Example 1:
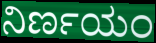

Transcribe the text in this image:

ನಿರ್ಣಯಂ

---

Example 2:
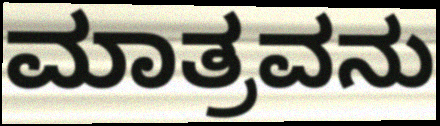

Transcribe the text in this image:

ಮಾತ್ರವನು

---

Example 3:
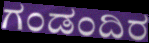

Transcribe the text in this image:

ಗಂಡಂದಿರ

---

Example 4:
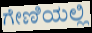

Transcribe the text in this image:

ಗೇಣಿಯಲ್ಲಿ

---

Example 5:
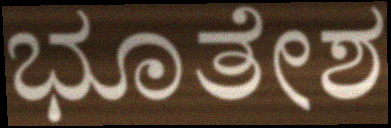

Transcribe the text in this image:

ಭೂತೇಶ